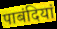
पाबंदियां